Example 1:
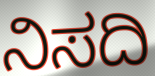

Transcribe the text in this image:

ನಿಸದಿ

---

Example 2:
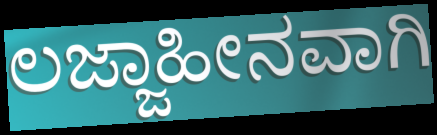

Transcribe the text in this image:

ಲಜ್ಜಾಹೀನವಾಗಿ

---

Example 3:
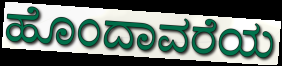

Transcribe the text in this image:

ಹೊಂದಾವರೆಯ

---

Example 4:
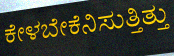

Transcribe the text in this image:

ಕೇಳಬೇಕೆನಿಸುತ್ತಿತ್ತು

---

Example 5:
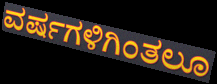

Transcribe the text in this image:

ವರ್ಷಗಳಿಗಿಂತಲೂ